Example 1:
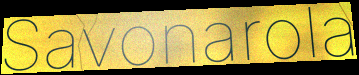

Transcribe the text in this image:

Savonarola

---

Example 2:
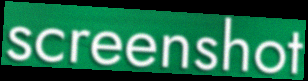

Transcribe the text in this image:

screenshot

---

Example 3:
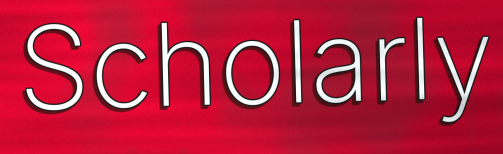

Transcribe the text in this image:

Scholarly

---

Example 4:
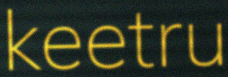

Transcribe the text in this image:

keetru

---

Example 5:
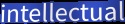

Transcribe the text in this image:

intellectual